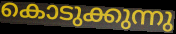
കൊടുക്കുന്നു